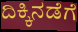
ದಿಕ್ಕಿನಡೆಗೆ